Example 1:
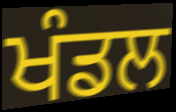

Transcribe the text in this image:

ਖੰਡਲ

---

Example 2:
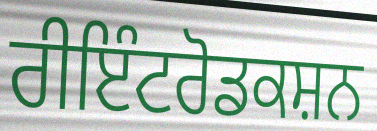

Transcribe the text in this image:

ਰੀਇੰਟਰੋਡਕਸ਼ਨ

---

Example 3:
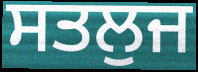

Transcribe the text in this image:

ਸਤਲੁਜ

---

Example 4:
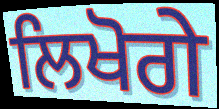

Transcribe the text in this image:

ਲਿਖੋਗੇ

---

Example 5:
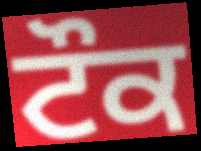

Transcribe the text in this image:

ਟੌਕ